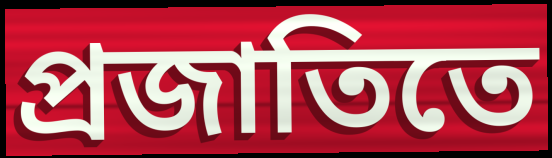
প্রজাতিতে